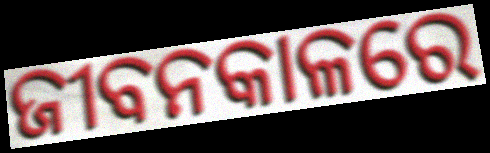
ଜୀବନକାଳରେ